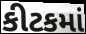
કીટકમાં